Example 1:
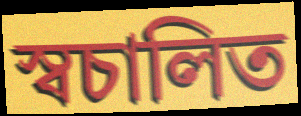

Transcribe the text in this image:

স্বচালিত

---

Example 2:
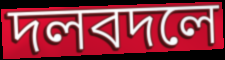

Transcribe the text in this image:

দলবদলে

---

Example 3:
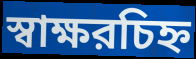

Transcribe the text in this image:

স্বাক্ষরচিহ্ন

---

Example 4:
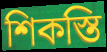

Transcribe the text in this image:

শিকস্তি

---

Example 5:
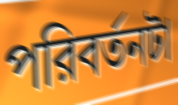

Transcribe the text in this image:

পরিবর্তনটা